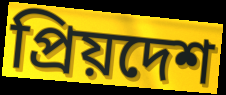
প্রিয়দেশ